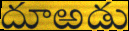
దూఱడు